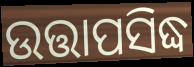
ଉତ୍ତାପସିଦ୍ଧ